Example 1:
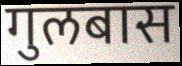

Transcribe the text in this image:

गुलबास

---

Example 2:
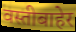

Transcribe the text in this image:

वस्तीबाहेर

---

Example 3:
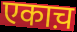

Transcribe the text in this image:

एकाच़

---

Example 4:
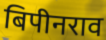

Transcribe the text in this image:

बिपीनराव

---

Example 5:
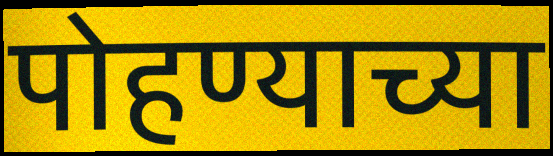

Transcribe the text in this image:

पोहण्याच्या